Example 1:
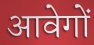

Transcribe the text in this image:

आवेगों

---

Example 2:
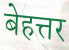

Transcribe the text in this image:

बेहत्तर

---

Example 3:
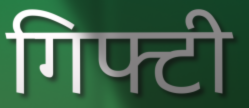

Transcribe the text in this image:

गिफ्टी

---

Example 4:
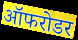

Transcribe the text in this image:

ऑफरोडर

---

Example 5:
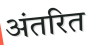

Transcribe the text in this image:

अंतरित